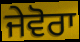
ਜੇਵੋਰਾ